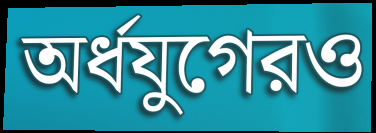
অর্ধযুগেরও